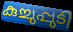
കുച്ചുപ്പുടി